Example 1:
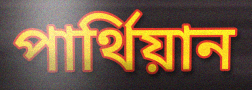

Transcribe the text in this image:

পার্থিয়ান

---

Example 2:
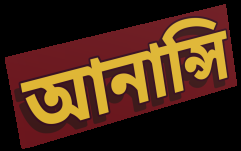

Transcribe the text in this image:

আনান্সি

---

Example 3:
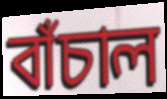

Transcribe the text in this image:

বাঁচাল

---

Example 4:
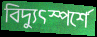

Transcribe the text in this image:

বিদ্যুৎস্পর্শে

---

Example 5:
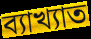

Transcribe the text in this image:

ব্যাখ্যাত